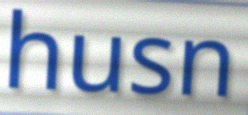
husn